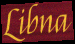
Libna